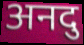
अनदु